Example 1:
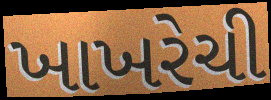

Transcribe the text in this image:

ખાખરેચી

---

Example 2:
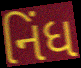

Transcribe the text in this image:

નિંધ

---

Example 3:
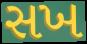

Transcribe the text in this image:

સખ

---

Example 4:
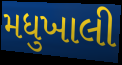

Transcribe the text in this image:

મધુખાલી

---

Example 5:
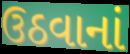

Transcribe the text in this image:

ઉઠવાનાં